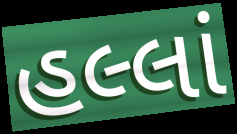
હલ્લાં